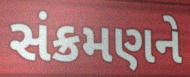
સંક્રમણને